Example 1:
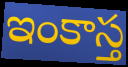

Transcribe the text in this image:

ఇంకాస్త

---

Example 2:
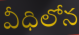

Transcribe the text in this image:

వీధిలోన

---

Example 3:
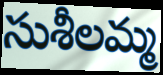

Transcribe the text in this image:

సుశీలమ్మ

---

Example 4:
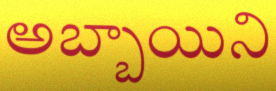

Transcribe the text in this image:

అబ్బాయిని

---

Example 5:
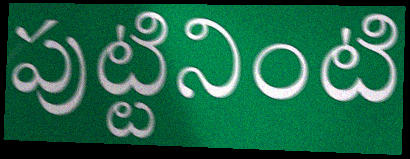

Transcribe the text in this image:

పుట్టినింటి